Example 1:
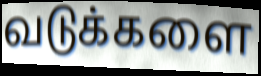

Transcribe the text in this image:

வடுக்களை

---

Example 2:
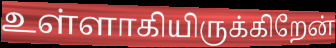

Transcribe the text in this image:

உள்ளாகியிருக்கிறேன்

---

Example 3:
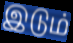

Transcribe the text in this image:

இடும்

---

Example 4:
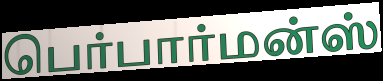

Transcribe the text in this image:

பெர்பார்மன்ஸ்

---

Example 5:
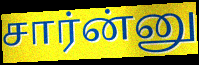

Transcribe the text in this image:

சார்ன்னு